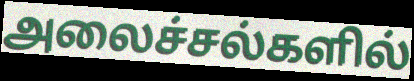
அலைச்சல்களில்